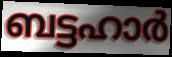
ബട്ടഹാർ